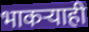
भाकऱ्याही